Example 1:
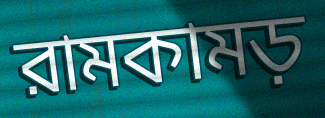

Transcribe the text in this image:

রামকামড়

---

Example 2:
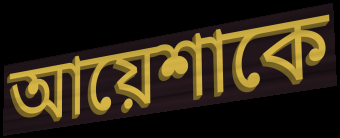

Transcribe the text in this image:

আয়েশাকে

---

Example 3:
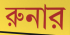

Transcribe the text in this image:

রুনার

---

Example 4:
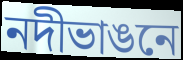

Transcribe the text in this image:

নদীভাঙনে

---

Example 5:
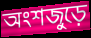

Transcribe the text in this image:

অংশজুড়ে